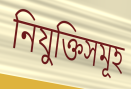
নিযুক্তিসমূহ